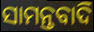
ସାମନ୍ତବାଦି